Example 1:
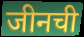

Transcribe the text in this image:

जीनची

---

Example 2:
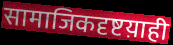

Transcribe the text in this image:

सामाजिकदृष्टय़ाही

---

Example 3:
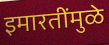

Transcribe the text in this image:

इमारतींमुळे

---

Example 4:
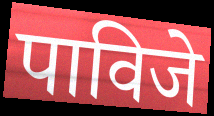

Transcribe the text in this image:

पाविजे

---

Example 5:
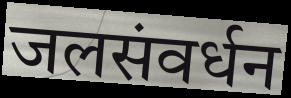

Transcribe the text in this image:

जलसंवर्धन